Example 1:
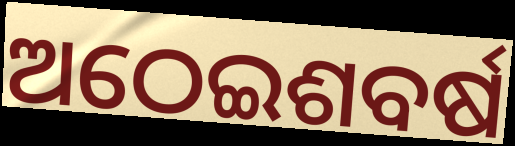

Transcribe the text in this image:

ଅଠେଇଶବର୍ଷ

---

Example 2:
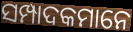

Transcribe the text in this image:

ସମ୍ପାଦକମାନେ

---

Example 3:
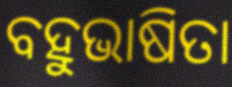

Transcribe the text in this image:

ବହୁଭାଷିତା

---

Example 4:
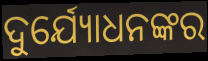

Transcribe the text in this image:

ଦୁର୍ଯ୍ୟୋଧନଙ୍କର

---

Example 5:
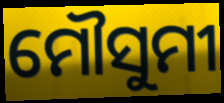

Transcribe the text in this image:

ମୌସୁମୀ